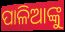
ପାଳିଆଙ୍କୁ